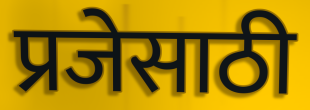
प्रजेसाठी